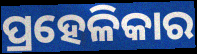
ପ୍ରହେଳିକାର